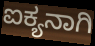
ಐಕ್ಯನಾಗಿ